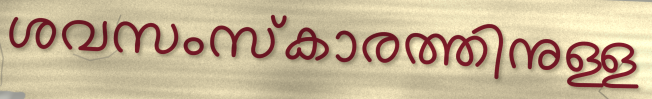
ശവസംസ്കാരത്തിനുള്ള